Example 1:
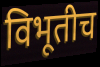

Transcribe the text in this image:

विभूतीच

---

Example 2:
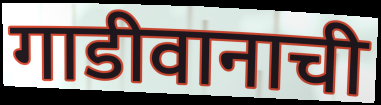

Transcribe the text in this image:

गाडीवानाची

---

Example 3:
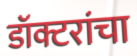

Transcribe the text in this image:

डॉक्टरांचा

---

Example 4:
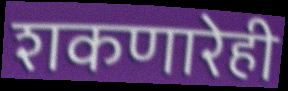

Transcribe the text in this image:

शकणारेही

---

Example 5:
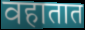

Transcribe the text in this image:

वहातात